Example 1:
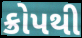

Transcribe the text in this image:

ક્રોપથી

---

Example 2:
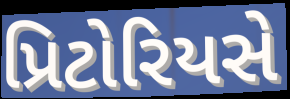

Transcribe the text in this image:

પ્રિટોરિયસે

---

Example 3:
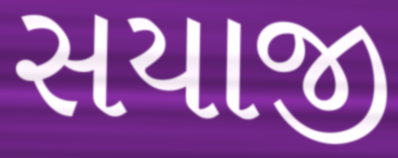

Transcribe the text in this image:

સયાજી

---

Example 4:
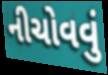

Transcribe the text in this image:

નીચોવવું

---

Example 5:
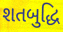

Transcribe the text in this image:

શતબુદ્ધિ